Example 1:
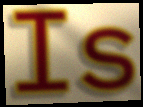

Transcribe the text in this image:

Is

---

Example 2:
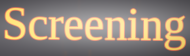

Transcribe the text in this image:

Screening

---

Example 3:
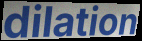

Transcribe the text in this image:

dilation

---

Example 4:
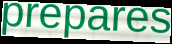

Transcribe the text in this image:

prepares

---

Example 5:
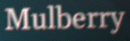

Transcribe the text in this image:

Mulberry